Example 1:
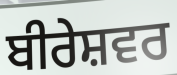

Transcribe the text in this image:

ਬੀਰੇਸ਼ਵਰ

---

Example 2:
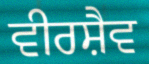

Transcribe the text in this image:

ਵੀਰਸ਼ੈਵ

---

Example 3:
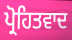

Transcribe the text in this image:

ਪ੍ਰੋਹਿਤਵਾਦ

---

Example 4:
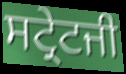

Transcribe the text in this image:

ਸਟ੍ਰੇਟਜੀ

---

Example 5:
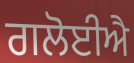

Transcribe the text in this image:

ਗਲੋਈਐ